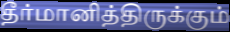
தீர்மானித்திருக்கும்